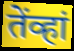
तेंव्हां